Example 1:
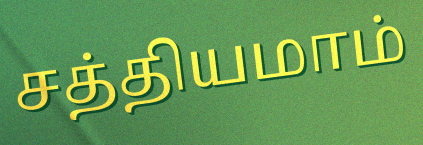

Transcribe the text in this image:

சத்தியமாம்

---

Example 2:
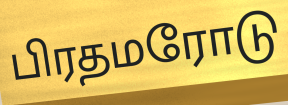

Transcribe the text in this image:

பிரதமரோடு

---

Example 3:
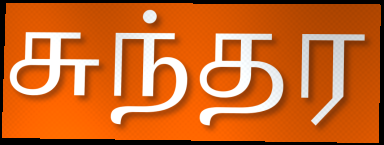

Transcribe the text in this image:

சுந்தர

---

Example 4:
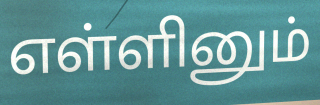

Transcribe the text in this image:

எள்ளினும்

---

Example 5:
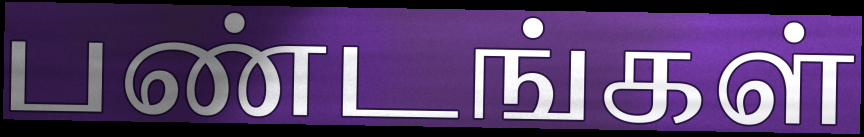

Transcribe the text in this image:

பண்டங்கள்